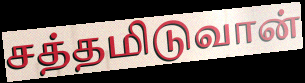
சத்தமிடுவான்